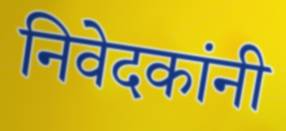
निवेदकांनी